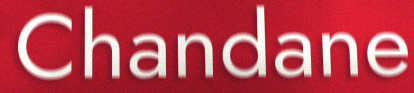
Chandane